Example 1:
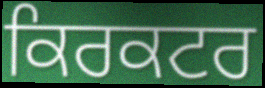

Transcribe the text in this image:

ਕਿਰਕਟਰ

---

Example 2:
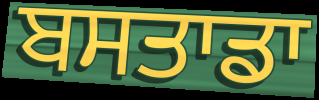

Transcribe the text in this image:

ਬਸਤਾਡਾ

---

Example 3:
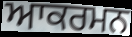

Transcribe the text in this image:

ਆਕਰਮਨ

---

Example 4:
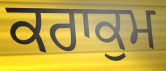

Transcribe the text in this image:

ਕਰਾਕੁਮ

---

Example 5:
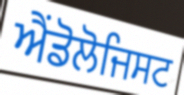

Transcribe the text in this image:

ਐਂਡੋਲੋਜਿਸਟ